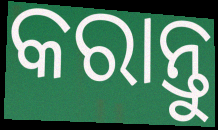
କରାନ୍ତୁ